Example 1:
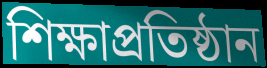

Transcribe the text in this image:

শিক্ষাপ্রতিষ্ঠান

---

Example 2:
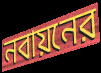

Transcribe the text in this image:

নবায়নের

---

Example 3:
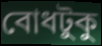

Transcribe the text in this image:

বোধটুকু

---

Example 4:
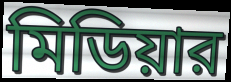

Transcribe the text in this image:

মিডিয়ার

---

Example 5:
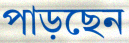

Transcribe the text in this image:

পাড়ছেন